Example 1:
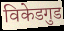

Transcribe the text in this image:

विकेडगुड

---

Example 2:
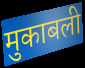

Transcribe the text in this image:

मुकाबली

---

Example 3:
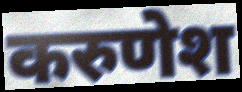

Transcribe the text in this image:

करुणेश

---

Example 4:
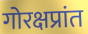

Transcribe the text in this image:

गोरक्षप्रांत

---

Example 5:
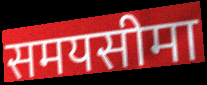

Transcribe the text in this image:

समयसीमा